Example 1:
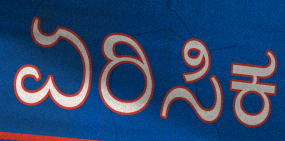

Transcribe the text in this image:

ಏರಿಸಿಕ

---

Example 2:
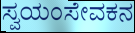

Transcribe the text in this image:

ಸ್ವಯಂಸೇವಕನ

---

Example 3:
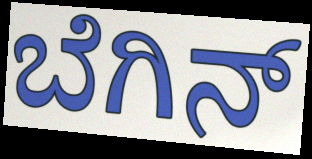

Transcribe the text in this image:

ಬೆಗಿನ್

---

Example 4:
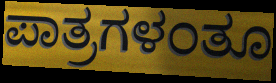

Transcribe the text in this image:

ಪಾತ್ರಗಳಂತೂ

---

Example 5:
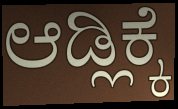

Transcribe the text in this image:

ಆಡ್ಲಿಕ್ಕೆ